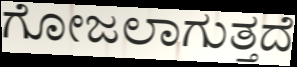
ಗೋಜಲಾಗುತ್ತದೆ